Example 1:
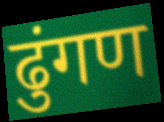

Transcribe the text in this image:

ढुंगण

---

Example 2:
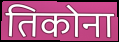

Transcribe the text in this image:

तिकोना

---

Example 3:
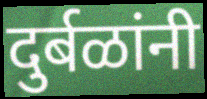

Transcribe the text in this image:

दुर्बळांनी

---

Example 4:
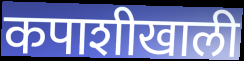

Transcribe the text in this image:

कपाशीखाली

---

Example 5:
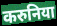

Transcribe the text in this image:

करुनिया